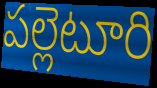
పల్లెటూరి